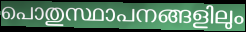
പൊതുസ്ഥാപനങ്ങളിലും